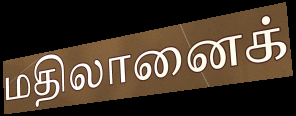
மதிலானைக்